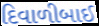
દિવાળીબાઈ